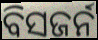
ବିସଜର୍ନ